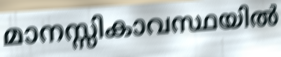
മാനസ്സികാവസ്ഥയിൽ